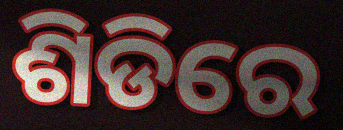
ଶିଡିରେ